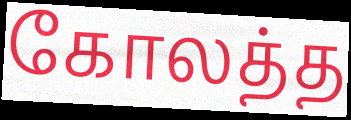
கோலத்த